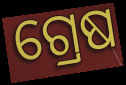
ଗ୍ରେଷ